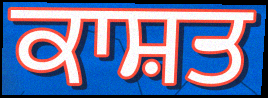
ਕਾਸ਼ਤ